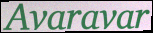
Avaravar